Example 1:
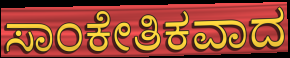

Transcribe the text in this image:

ಸಾಂಕೇತಿಕವಾದ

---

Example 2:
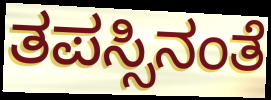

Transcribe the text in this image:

ತಪಸ್ಸಿನಂತೆ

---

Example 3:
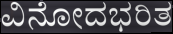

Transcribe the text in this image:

ವಿನೋದಭರಿತ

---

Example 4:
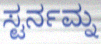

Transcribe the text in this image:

ಸ್ಟರ್ನಮ್ನ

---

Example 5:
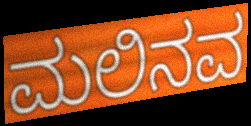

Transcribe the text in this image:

ಮಲಿನವ